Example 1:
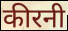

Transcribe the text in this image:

कीरनी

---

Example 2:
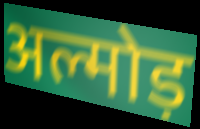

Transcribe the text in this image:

अल्मोड़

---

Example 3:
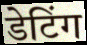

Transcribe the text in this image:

डेटिंग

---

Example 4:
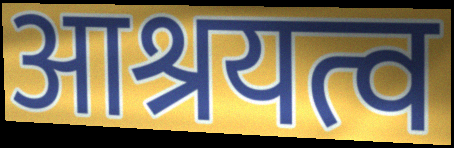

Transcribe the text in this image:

आश्रयत्व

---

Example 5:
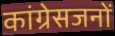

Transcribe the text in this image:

कांग्रेसजनों